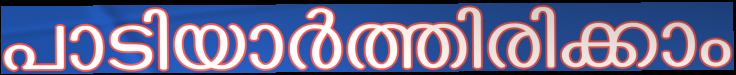
പാടിയാർത്തിരിക്കാം